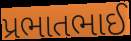
પ્રભાતભાઈ